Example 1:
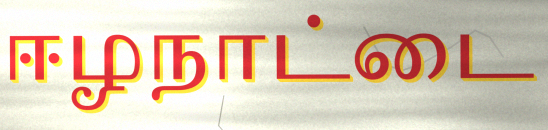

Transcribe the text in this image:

ஈழநாட்டை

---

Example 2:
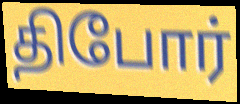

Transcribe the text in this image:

திபோர்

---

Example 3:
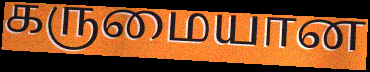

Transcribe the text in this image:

கருமையான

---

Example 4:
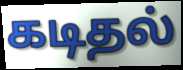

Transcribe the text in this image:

கடிதல்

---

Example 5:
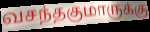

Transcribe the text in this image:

வசந்தகுமாருக்கு